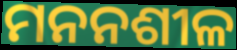
ମନନଶୀଳ